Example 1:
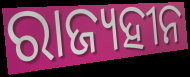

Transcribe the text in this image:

ରାଜ୍ୟହୀନ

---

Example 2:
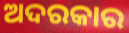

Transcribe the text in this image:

ଅଦରକାର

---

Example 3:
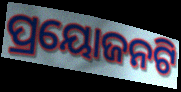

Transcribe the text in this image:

ପ୍ରୟୋଜନଟି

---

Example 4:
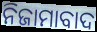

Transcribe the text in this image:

ନିଜାମାବାଦ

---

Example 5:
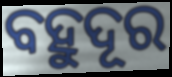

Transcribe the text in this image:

ବହୁଦୂର